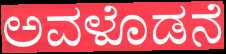
ಅವಳೊಡನೆ